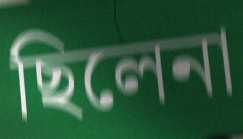
ছিলেনা